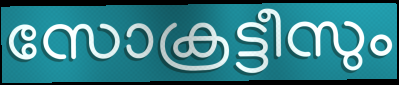
സോക്രട്ടീസും